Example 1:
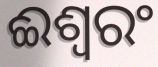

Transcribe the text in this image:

ଈଶ୍ୱରଂ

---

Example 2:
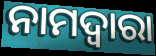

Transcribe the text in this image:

ନାମଦ୍ଵାରା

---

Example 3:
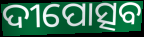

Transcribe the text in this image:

ଦୀପୋତ୍ସବ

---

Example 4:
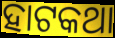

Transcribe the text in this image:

ହାଟକଥା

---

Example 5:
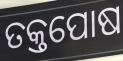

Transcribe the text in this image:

ତକ୍ତପୋଷ